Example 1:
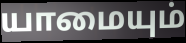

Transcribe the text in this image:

யாமையும்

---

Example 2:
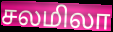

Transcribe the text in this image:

சலமிலா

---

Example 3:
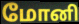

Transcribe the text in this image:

மோனி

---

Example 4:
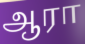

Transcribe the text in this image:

ஆரா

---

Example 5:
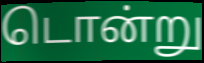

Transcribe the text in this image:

டொன்று